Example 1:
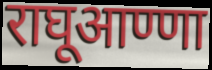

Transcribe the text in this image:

राघूआण्णा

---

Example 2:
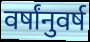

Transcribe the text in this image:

वर्षांनुवर्ष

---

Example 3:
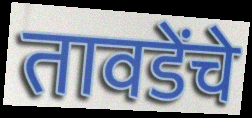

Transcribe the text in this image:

तावडेंचे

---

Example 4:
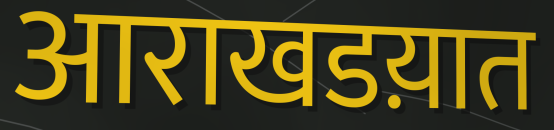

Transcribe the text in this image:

आराखडय़ात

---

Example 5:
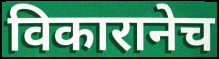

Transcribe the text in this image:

विकारानेच